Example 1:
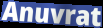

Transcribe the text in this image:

Anuvrat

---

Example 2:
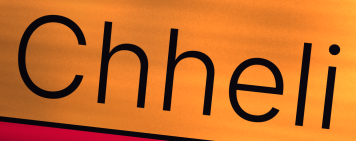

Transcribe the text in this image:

Chheli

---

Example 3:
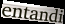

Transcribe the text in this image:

entandi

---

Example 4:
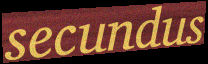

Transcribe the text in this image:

secundus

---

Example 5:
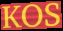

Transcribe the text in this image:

KOS